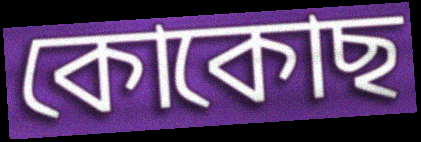
কোকোছ